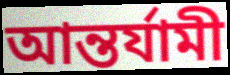
আন্তর্যামী